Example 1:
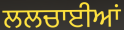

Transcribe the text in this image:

ਲਲਚਾਈਆਂ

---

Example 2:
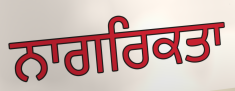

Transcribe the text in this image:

ਨਾਗਰਿਕਤਾ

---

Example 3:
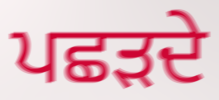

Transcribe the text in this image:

ਪਛੜਦੇ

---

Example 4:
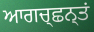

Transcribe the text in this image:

ਆਗਚ੍ਛਨ੍ਤਂ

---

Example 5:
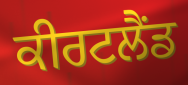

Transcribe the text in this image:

ਕੀਰਟਲੈਂਡ